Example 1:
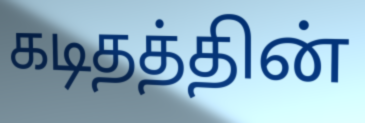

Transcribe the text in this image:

கடிதத்தின்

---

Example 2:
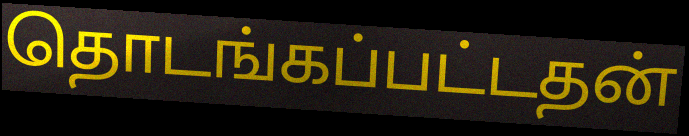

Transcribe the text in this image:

தொடங்கப்பட்டதன்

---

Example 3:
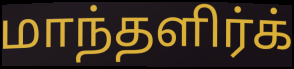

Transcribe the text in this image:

மாந்தளிர்க்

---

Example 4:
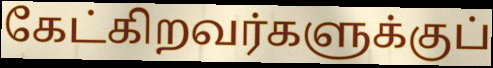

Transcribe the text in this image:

கேட்கிறவர்களுக்குப்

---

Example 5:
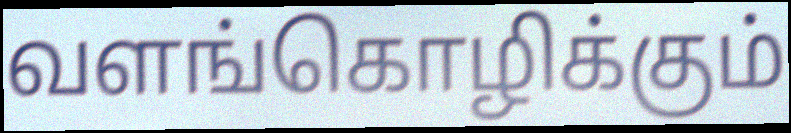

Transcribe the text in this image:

வளங்கொழிக்கும்